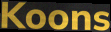
Koons